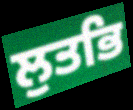
ਲੁਤਭਿ